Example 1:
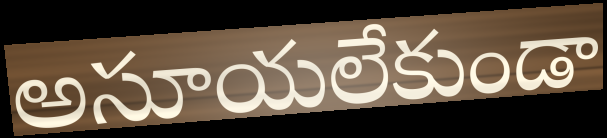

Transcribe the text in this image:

అసూయలేకుండా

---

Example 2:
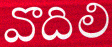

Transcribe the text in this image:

వొదిలి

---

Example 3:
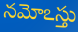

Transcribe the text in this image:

నమోఽస్తు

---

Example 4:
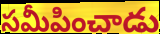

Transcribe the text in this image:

సమీపించాడు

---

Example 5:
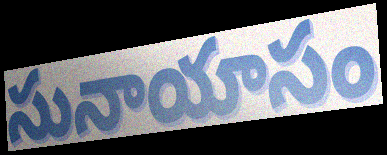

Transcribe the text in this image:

సునాయాసం